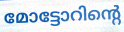
മോട്ടോറിന്റെ